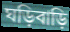
ঘড়িবাড়ি